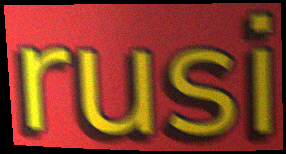
rusi